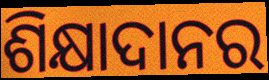
ଶିକ୍ଷାଦାନର